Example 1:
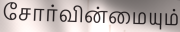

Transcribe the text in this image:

சோர்வின்மையும்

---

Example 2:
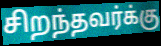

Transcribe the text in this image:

சிறந்தவர்க்கு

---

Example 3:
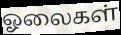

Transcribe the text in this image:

ஓலைகள்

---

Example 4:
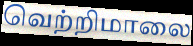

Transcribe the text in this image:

வெற்றிமாலை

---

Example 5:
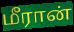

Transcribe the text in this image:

மீரான்